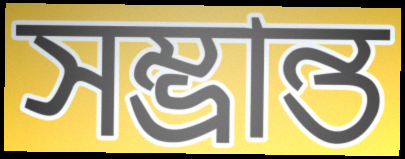
সম্ভ্ৰান্ত